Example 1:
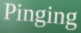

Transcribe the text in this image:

Pinging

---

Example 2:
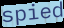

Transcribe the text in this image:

spied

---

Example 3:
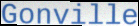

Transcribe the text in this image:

Gonville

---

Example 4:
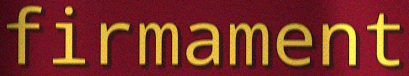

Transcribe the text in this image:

firmament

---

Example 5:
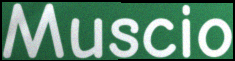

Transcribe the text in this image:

Muscio